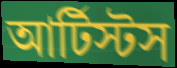
আর্টিস্টস